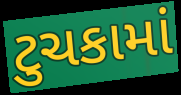
ટુચકામાં